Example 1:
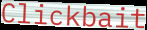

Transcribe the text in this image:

Clickbait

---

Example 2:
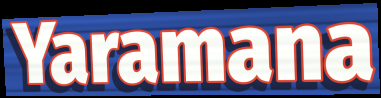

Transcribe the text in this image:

Yaramana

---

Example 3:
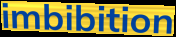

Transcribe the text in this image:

imbibition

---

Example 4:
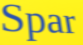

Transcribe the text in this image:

Spar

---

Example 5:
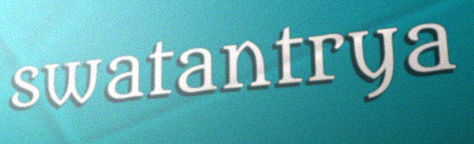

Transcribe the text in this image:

swatantrya